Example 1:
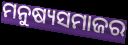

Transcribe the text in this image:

ମନୁଷ୍ୟସମାଜର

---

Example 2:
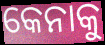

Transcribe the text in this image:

କେନାକୁ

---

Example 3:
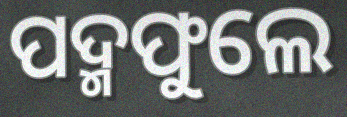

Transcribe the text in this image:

ପଦ୍ମଫୁଲେ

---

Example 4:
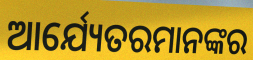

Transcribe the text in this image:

ଆର୍ଯ୍ୟେତରମାନଙ୍କର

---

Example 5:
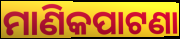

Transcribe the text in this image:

ମାଣିକପାଟଣା